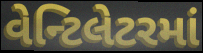
વેન્ટિલેટરમાં